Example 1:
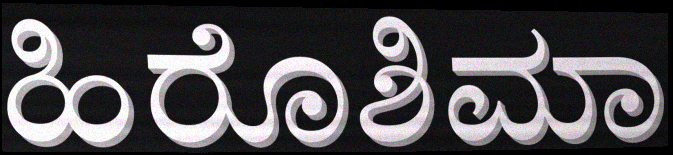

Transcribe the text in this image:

ಹಿರೊಶಿಮಾ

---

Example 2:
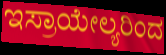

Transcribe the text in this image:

ಇಸ್ರಾಯೇಲ್ಯರಿಂದ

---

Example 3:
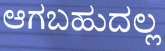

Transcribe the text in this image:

ಆಗಬಹುದಲ್ಲ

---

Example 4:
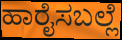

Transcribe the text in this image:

ಹಾರೈಸಬಲ್ಲೆ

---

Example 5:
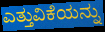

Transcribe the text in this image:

ಎತ್ತುವಿಕೆಯನ್ನು